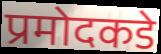
प्रमोदकडे